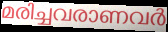
മരിച്ചവരാണവർ